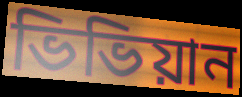
ভিভিয়ান